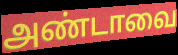
அண்டாவை